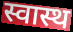
स्वास्थ